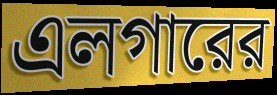
এলগারের